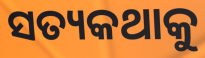
ସତ୍ୟକଥାକୁ